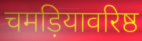
चमड़ियावरिष्ठ